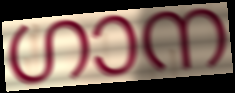
ഗാന